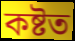
কষ্টত